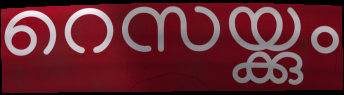
റെസയ്ക്കും